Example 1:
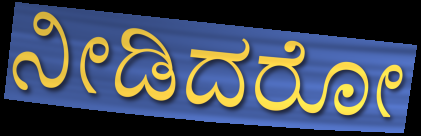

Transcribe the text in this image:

ನೀಡಿದರೋ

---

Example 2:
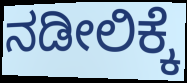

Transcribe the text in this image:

ನಡೀಲಿಕ್ಕೆ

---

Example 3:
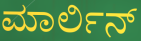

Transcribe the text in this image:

ಮಾರ್ಲಿನ್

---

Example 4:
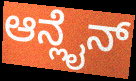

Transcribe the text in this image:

ಆನ್ಲೈನ್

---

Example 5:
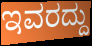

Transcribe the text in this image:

ಇವರದ್ದು